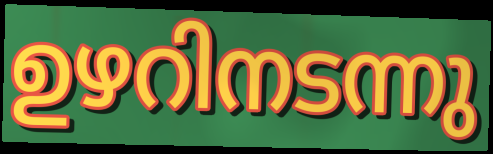
ഉഴറിനടന്നു